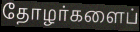
தோழர்களைப்